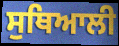
ਸੁਥਿਆਲੀ